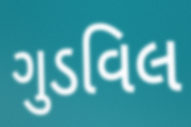
ગુડવિલ